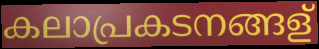
കലാപ്രകടനങ്ങള്